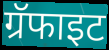
ग्रॅफाइट